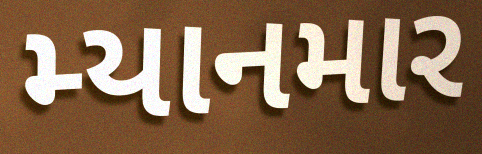
મ્યાનમાર